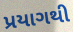
પ્રયાગથી